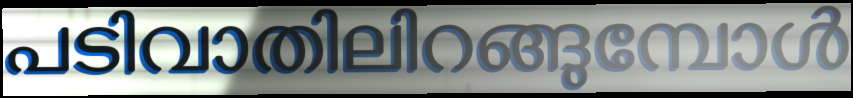
പടിവാതിലിറങ്ങുമ്പോൾ